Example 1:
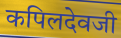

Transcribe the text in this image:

कपिलदेवजी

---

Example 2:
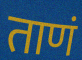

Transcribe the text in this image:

ताणं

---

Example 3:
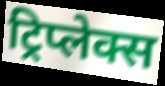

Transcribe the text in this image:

ट्रिप्लेक्स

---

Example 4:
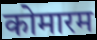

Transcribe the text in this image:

कोमारम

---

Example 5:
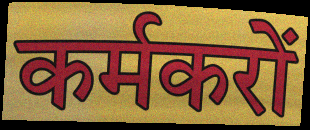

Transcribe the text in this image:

कर्मकरों